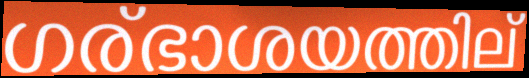
ഗര്ഭാശയത്തില്